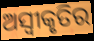
ଅସ୍ୱୀକୃତିର